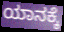
ಯಾನಕ್ಕೆ